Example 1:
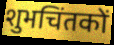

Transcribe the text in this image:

शुभचिंतकों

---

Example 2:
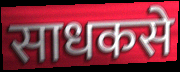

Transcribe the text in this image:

साधकसे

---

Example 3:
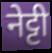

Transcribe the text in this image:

नेट्टी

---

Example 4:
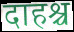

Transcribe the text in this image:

दाहश्च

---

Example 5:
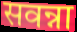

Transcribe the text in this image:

सवन्ना